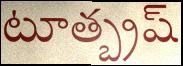
టూత్బ్రష్